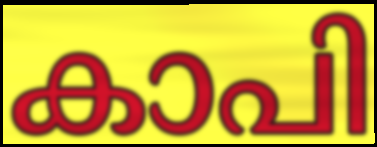
കാപി